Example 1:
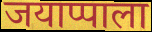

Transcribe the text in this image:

जयाप्पाला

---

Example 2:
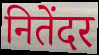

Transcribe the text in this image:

नितेंदर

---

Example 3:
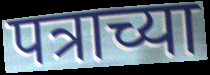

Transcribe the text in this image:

पत्राच्या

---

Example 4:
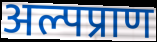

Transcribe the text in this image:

अल्पप्राण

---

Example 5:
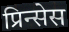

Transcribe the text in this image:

प्रिन्सेस